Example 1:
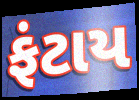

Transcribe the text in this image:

ફંટાય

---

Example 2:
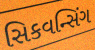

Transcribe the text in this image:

સિકવન્સિંગ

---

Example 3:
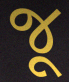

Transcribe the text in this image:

જૂ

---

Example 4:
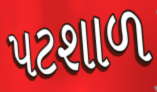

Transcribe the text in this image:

પટશાળ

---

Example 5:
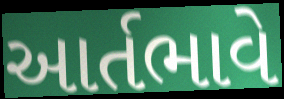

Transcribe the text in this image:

આર્તભાવે